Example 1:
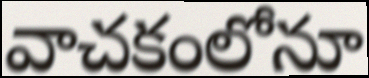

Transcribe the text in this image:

వాచకంలోనూ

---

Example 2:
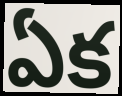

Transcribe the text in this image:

ఏక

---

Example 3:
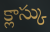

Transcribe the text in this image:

క్లాస్కు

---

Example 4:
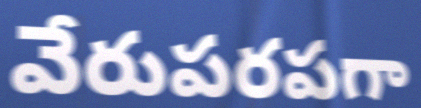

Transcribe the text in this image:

వేరుపరపగా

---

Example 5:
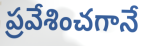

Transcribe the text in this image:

ప్రవేశించగానే